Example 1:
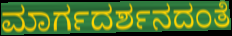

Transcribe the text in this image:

ಮಾರ್ಗದರ್ಶನದಂತೆ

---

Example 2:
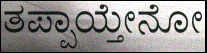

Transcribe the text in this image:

ತಪ್ಪಾಯ್ತೇನೋ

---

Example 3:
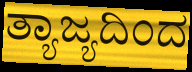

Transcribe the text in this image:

ತ್ಯಾಜ್ಯದಿಂದ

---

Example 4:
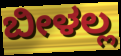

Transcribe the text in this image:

ಬೀಳಲ್ಲ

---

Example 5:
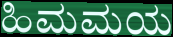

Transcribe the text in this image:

ಹಿಮಮಯ